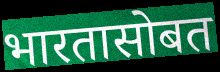
भारतासोबत